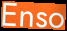
Enso